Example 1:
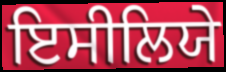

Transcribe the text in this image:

ਇਸੀਲਿਯੇ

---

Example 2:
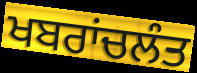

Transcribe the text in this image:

ਖਬਰਾਂਚਲੰਤ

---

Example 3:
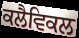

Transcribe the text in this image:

ਕਲੈਵਿਕਲ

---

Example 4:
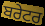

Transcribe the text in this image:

ਬਰੇਟਰ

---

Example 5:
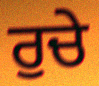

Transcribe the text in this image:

ਰੁਚੇ